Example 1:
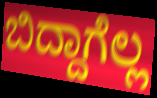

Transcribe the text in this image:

ಬಿದ್ದಾಗೆಲ್ಲ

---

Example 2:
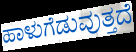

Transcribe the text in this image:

ಹಾಳುಗೆಡುವುತ್ತದೆ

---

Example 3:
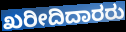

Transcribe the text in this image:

ಖರೀದಿದಾರರು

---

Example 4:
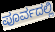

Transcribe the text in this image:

ಪೂರ್ವದಲ್ಲಿ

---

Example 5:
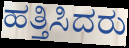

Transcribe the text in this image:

ಹತ್ತಿಸಿದರು